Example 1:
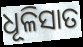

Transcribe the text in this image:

ଧୂଳିସାତ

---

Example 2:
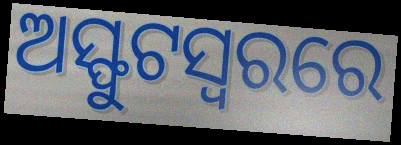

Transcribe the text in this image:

ଅସ୍ଫୁଟସ୍ୱରରେ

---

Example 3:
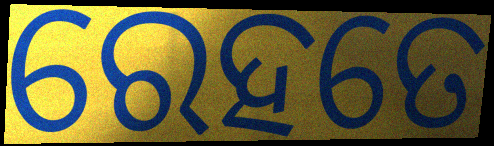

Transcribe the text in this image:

ରେହତେ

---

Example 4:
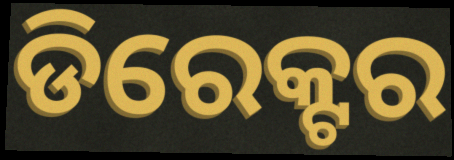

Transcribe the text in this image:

ଡିରେକ୍ଟର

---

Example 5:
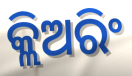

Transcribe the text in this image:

କ୍ଲିଅରିଂ